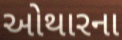
ઓથારના